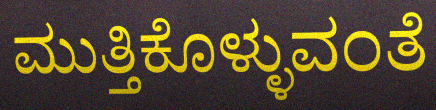
ಮುತ್ತಿಕೊಳ್ಳುವಂತೆ